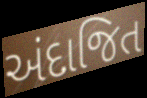
અંદાજિત